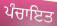
ਪੰਚਾਇਤ